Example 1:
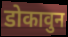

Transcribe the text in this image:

डोकावुन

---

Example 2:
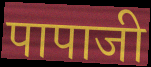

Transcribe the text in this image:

पापाजी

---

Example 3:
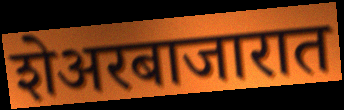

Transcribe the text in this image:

शेअरबाजारात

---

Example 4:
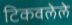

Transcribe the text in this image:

टिकवलेले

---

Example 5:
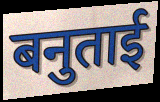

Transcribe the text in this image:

बनुताई